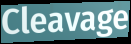
Cleavage